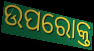
ଉପରୋକ୍ତ